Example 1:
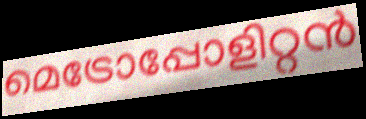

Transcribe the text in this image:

മെട്രോപ്പോളിറ്റൻ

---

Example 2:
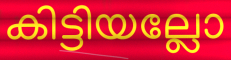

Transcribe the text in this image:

കിട്ടിയല്ലോ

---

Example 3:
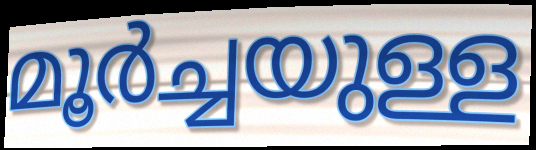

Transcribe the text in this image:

മൂർച്ചയുള്ള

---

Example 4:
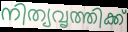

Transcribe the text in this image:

നിത്യവൃത്തിക്ക്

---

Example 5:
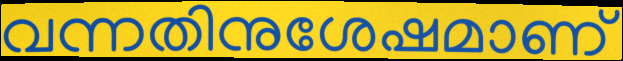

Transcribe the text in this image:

വന്നതിനുശേഷമാണ്